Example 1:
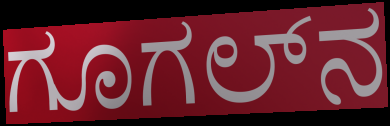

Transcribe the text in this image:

ಗೂಗಲ್‌ನ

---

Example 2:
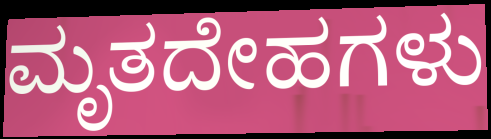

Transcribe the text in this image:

ಮೃತದೇಹಗಳು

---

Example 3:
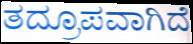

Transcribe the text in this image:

ತದ್ರೂಪವಾಗಿದೆ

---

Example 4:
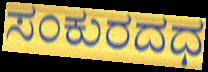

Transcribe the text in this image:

ಸಂಕುರದಧ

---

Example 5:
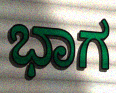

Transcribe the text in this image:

ಭಾಗ